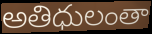
అతిధులంతా